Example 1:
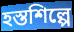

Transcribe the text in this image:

হস্তশিল্পে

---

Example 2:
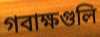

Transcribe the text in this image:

গবাক্ষগুলি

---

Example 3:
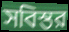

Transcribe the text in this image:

সবিস্তর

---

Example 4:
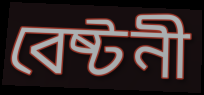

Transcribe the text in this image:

বেষ্টনী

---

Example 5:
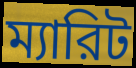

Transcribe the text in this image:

ম্যারিট